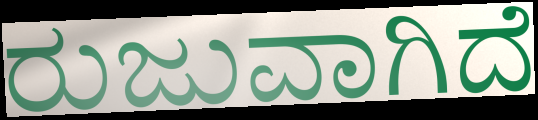
ರುಜುವಾಗಿದೆ